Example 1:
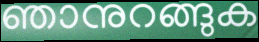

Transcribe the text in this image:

ഞാനുറങ്ങുക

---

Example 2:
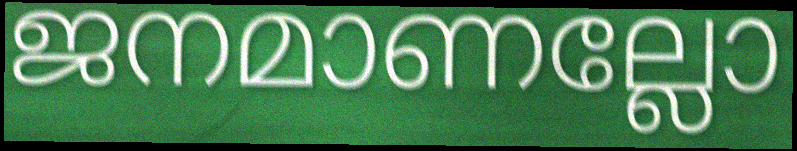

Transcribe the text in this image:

ജനമാണല്ലോ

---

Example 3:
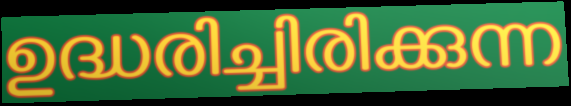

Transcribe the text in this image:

ഉദ്ധരിച്ചിരിക്കുന്ന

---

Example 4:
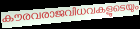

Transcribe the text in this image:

കൗരവരാജവിധവകളുടെയും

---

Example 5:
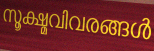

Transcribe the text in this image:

സൂക്ഷ്മവിവരങ്ങൾ